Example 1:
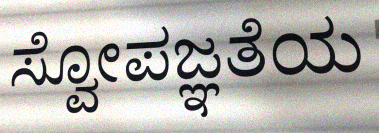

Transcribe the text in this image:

ಸ್ವೋಪಜ್ಞತೆಯ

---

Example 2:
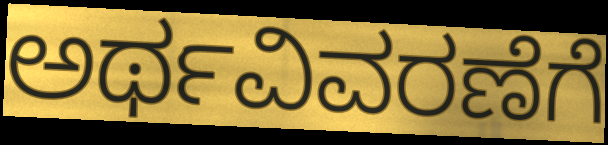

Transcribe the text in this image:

ಅರ್ಥವಿವರಣೆಗೆ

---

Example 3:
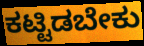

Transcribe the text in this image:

ಕಟ್ಟಿಡಬೇಕು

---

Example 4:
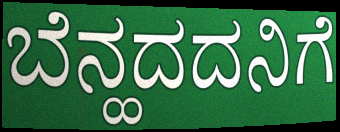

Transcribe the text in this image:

ಬೆನ್ಹದದನಿಗೆ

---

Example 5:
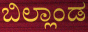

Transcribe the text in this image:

ಬಿಲ್ಲಾಂಡ